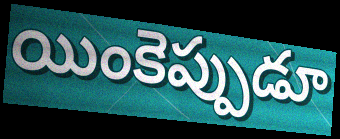
యింకెప్పుడూ